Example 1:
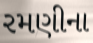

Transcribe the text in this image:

રમણીના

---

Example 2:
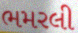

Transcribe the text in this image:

ભમરલી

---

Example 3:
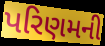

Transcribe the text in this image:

પરિણમની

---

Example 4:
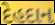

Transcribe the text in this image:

દેહદાન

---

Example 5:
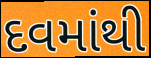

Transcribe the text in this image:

દવમાંથી